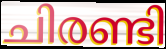
ചിരണ്ടി